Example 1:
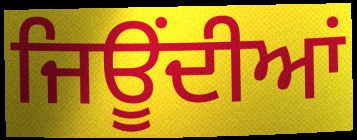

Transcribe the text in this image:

ਜਿਊਂਦੀਆਂ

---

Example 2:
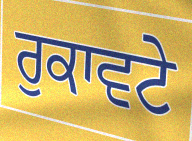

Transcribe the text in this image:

ਰੁਕਾਵਟੇ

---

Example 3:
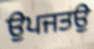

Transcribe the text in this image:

ਉਪਜਤਉ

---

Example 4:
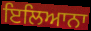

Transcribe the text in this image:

ਇਲਿਆਨਾ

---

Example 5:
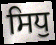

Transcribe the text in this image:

ਸਿਧੁ